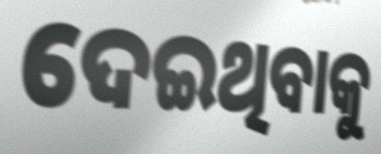
ଦେଇଥିବାକୁ